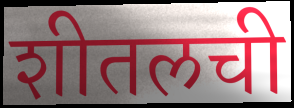
शीतलची